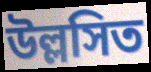
উল্লসিত